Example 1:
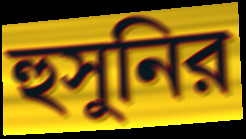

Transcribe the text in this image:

হুসুনির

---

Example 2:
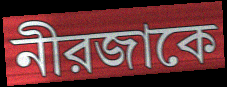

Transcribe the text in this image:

নীরজাকে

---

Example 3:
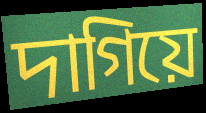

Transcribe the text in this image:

দাগিয়ে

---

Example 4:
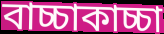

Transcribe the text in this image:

বাচ্চাকাচ্চা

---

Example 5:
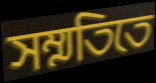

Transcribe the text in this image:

সম্মতিতে